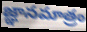
జ్ఞానమాత్రం